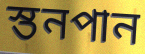
স্তনপান